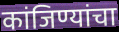
कांजिण्यांचा